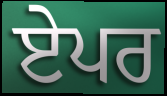
ਏਪਰ